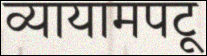
व्यायामपटू